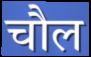
चौल